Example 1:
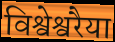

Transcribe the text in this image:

विश्वेश्वरैया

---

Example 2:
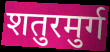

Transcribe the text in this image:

शतुरमुर्ग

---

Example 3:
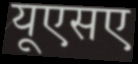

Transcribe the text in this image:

यूएसए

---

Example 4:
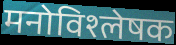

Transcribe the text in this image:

मनोविश्लेषक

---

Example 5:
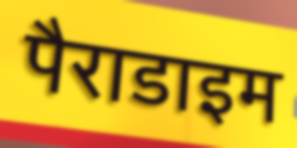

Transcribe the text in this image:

पैराडाइम